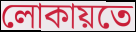
লোকায়তে